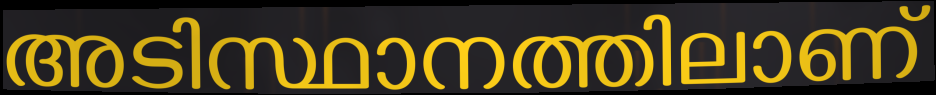
അടിസ്ഥാനത്തിലാണ്